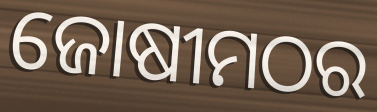
ଜୋଷୀମଠର